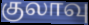
குலாவு